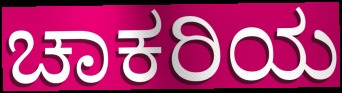
ಚಾಕರಿಯ